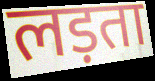
लड़ता